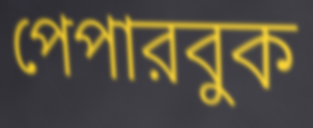
পেপারবুক